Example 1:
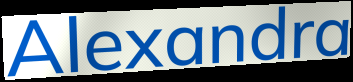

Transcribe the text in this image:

Alexandra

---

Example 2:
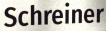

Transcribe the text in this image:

Schreiner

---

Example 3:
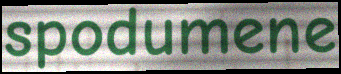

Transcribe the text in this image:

spodumene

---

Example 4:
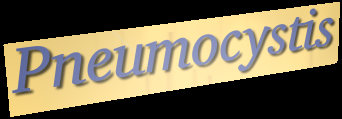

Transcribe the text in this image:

Pneumocystis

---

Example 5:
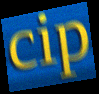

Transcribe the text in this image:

cip